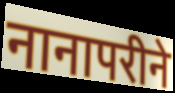
नानापरीने